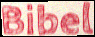
Bibel